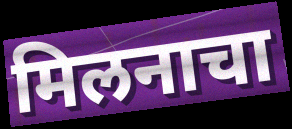
मिलनाचा